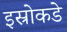
इस्रोकडे